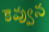
కెవ్వున